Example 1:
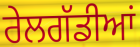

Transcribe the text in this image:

ਰੇਲਗੱਡੀਆਂ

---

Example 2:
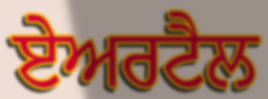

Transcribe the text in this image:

ਏਅਰਟੈਲ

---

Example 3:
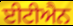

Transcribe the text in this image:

ਈਟੀਐਨ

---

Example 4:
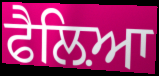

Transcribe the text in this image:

ਫੈਲ਼ਿਆ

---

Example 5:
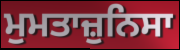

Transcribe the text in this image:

ਮੁਮਤਾਜ਼ੁਨਿਸਾ